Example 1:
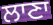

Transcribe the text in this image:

ਲਾਣਾ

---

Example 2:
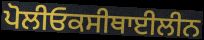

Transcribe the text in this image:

ਪੋਲੀਓਕਸੀਥਾਈਲੀਨ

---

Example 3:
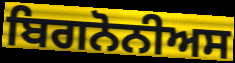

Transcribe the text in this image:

ਬਿਗਨੋਨੀਅਸ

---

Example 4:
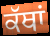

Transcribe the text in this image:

ਕੱਥਾਂ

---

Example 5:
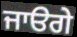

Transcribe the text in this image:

ਜਾੳਗੇ